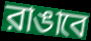
রাঙাবে